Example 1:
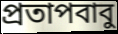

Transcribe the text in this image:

প্রতাপবাবু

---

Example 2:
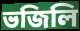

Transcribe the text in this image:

ভজিলি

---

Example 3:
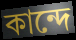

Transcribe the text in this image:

কান্দে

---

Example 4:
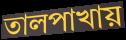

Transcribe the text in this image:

তালপাখায়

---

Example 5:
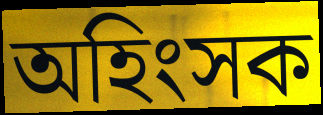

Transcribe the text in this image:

অহিংসক